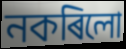
নকৰিলো